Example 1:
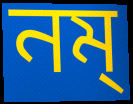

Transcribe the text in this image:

নম্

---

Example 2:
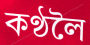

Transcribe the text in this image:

কণ্ঠলৈ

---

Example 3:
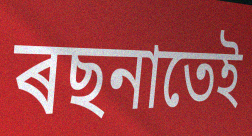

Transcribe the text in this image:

ৰছনাতেই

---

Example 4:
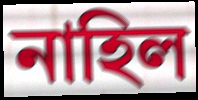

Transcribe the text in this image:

নাহিল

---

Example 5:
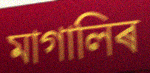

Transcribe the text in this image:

মাগালিৰ